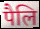
पैलि